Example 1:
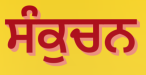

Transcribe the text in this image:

ਸੰਕੁਚਨ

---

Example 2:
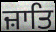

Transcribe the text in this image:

ਜ਼ਾਤਿ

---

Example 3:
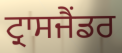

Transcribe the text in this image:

ਟ੍ਰਾਸਜੈਂਡਰ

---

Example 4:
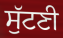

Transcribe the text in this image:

ਸੁੱਟਣੀ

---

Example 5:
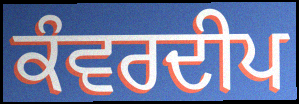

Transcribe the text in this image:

ਕੰਵਰਦੀਪ